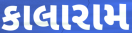
કાલારામ